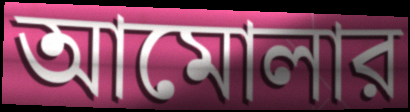
আমোলার